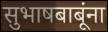
सुभाषबाबूंना